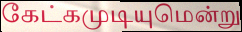
கேட்கமுடியுமென்று